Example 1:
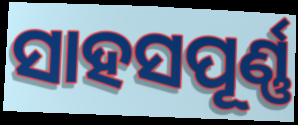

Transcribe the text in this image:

ସାହସପୂର୍ଣ୍ଣ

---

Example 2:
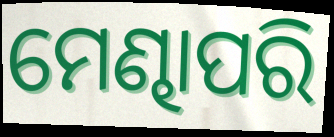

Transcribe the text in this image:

ମେଣ୍ଢାପରି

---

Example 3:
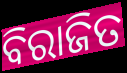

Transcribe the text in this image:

ବିରାଜିତ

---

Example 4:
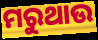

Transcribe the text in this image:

ମରୁଥାଉ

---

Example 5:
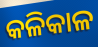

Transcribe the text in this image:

କଳିକାଳ